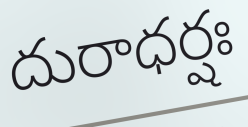
దురాధర్షః